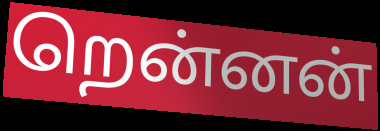
றென்னன்